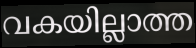
വകയില്ലാത്ത